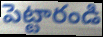
పెట్టారండి